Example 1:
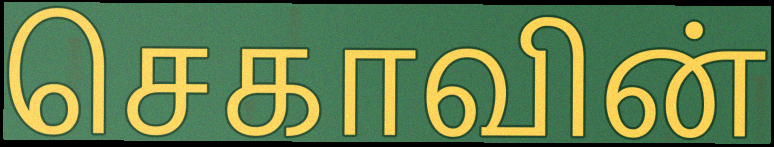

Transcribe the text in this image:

செகாவின்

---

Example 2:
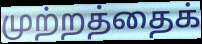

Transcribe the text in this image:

முற்றத்தைக்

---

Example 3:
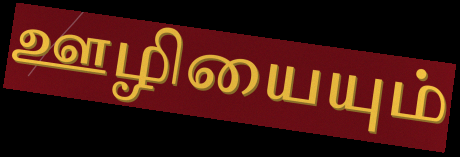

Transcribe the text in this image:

ஊழியையும்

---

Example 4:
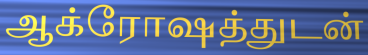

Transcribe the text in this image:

ஆக்ரோஷத்துடன்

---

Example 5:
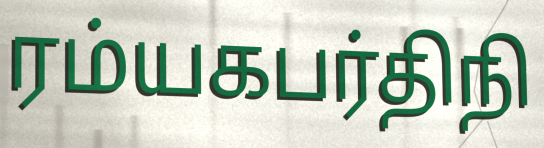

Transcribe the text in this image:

ரம்யகபர்திநி